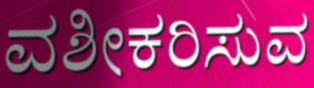
ವಶೀಕರಿಸುವ